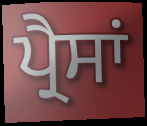
ਪ੍ਰੈਸਾਂ